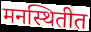
मनस्थितीत